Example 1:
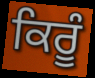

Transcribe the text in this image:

ਕਿਰੂੰ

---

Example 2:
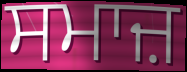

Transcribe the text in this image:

ਸਮਾਜ਼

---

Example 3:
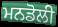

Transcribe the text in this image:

ਮਨਡੋਲੀ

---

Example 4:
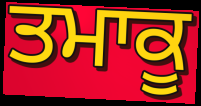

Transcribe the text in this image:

ਤਮਾਕੂ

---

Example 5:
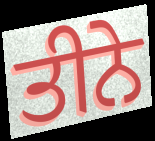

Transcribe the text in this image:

ਤੀਨੇ